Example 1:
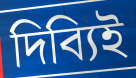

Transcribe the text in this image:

দিব্যিই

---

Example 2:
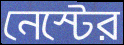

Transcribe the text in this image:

নেস্টের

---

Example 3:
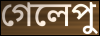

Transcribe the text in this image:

গেলেপু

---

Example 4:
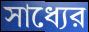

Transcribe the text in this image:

সাধ্যের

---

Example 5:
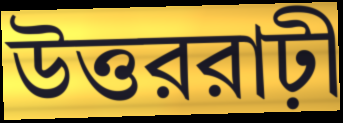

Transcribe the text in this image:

উত্তররাঢ়ী